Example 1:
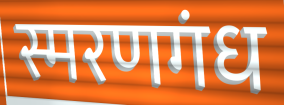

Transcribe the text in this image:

स्मरणगंध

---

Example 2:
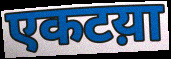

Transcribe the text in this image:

एकटय़ा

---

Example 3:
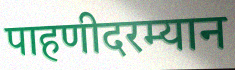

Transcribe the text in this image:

पाहणीदरम्यान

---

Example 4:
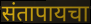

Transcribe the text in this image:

संतापायचा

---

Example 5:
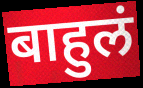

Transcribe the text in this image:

बाहुलं